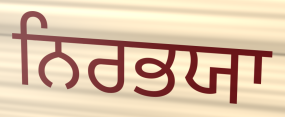
ਨਿਰਭਯਾ